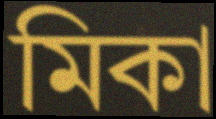
মিকা